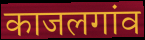
काजलगांव